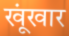
खूंखार